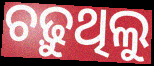
ଚଢ଼ୁଥିଲୁ